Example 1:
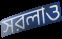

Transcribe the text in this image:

সরলাও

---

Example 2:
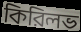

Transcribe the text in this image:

কিরিলভ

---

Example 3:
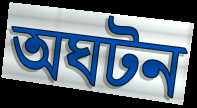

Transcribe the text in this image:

অঘটন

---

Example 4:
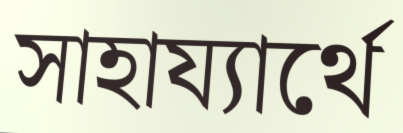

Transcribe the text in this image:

সাহায্যার্থে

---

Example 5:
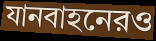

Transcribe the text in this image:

যানবাহনেরও